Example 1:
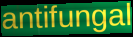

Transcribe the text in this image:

antifungal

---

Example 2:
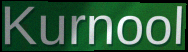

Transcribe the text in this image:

Kurnool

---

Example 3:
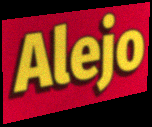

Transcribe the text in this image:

Alejo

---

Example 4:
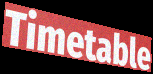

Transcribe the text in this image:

Timetable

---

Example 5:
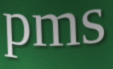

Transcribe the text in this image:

pms